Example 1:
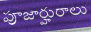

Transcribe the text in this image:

పూజార్హురాలు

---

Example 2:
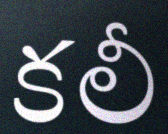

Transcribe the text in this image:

కలీ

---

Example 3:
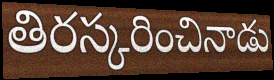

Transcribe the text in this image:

తిరస్కరించినాడు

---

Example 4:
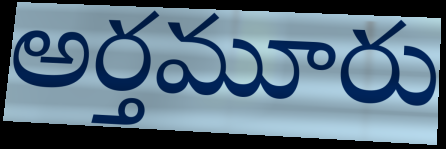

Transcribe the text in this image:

అర్తమూరు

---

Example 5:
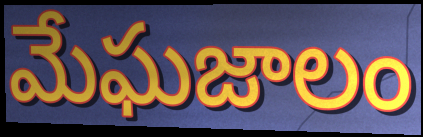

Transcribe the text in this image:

మేఘజాలం